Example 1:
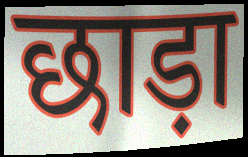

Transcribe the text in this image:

छाड़ा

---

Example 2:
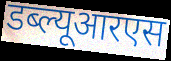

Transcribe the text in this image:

डब्ल्यूआरएस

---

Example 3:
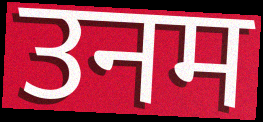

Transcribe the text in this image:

उनम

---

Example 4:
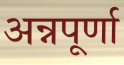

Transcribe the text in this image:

अन्नपूर्णा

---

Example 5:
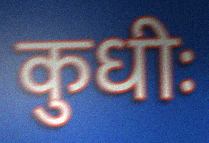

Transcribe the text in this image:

कुधीः